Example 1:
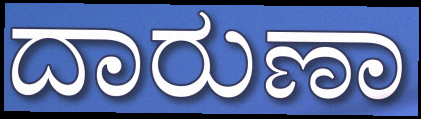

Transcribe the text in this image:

ದಾರುಣಾ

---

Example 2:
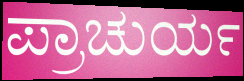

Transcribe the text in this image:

ಪ್ರಾಚುರ್ಯ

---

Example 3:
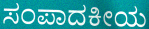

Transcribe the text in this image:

ಸಂಪಾದಕೀಯ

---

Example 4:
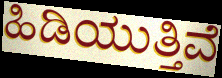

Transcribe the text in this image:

ಹಿಡಿಯುತ್ತಿವೆ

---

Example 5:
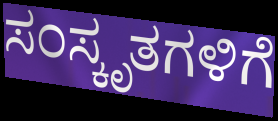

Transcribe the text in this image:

ಸಂಸ್ಕೃತಗಳಿಗೆ